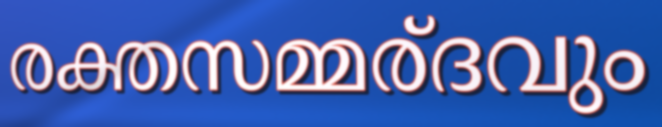
രക്തസമ്മര്ദവും